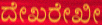
ದೇಖರೇಖೀ